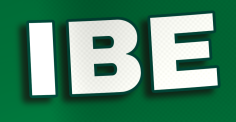
IBE